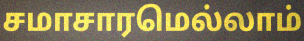
சமாசாரமெல்லாம்